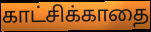
காட்சிக்காதை